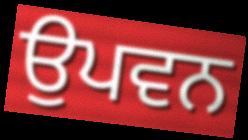
ਉਪਵਨ